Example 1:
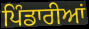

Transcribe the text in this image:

ਪਿੰਡਾਰੀਆਂ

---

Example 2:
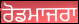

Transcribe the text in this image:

ਰੋਡਮਾਜਰਾ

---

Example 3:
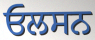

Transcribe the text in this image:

ਓਲਸਨ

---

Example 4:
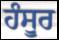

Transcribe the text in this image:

ਹੰਸੂਰ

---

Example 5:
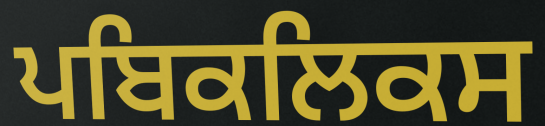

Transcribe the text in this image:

ਪਬਿਕਲਿਕਸ